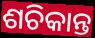
ଶଚିକାନ୍ତ